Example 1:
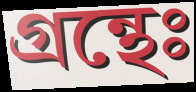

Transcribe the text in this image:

গ্রন্থেঃ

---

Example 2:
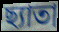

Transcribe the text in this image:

ছ্যাতা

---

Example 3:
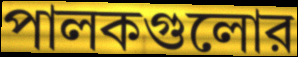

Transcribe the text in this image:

পালকগুলোর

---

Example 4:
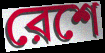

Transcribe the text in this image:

রেশে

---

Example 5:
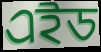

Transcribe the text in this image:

এইড